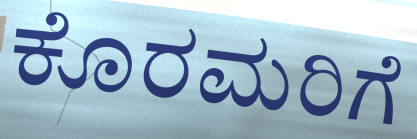
ಕೊರಮರಿಗೆ